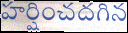
హర్షించదగిన